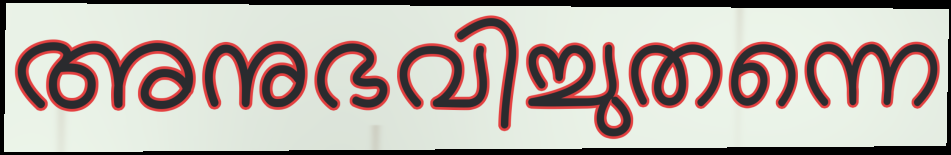
അനുഭവിച്ചുതന്നെ